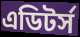
এডিটর্স